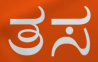
ತಸ